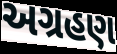
અગ્રહણ